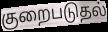
குறைபடுதல்